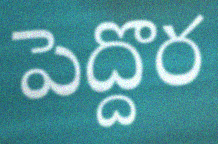
పెద్దొర